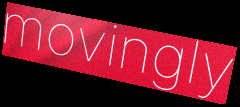
movingly